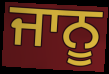
ਜਾਨੂ